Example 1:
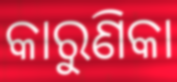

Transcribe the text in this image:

କାରୁଣିକା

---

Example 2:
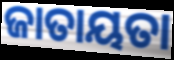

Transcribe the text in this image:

ଜାତାୟତା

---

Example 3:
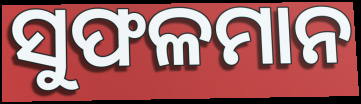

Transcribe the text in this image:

ସୁଫଳମାନ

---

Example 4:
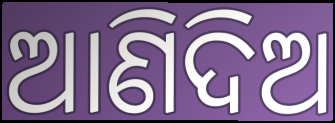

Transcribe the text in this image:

ଆଣିଦିଅ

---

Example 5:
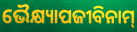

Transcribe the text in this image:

ଭୈକ୍ଷ୍ୟାପଜୀବିନାମ୍